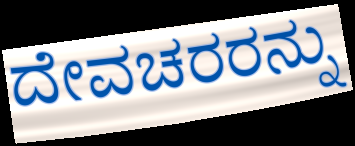
ದೇವಚರರನ್ನು